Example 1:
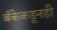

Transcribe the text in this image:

बँकेकडूनही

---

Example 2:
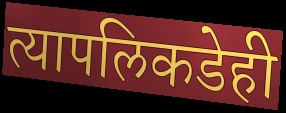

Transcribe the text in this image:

त्यापलिकडेही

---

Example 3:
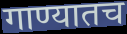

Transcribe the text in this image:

गाण्यातच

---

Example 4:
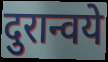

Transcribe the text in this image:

दुरान्वये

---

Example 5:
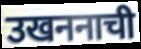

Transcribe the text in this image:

उखननाची